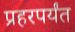
प्रहरपर्यंत